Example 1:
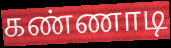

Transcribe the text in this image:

கண்ணாடி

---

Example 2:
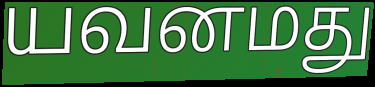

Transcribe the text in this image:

யவனமது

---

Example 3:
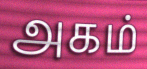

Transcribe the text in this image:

அகம்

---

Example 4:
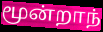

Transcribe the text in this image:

மூன்றாந்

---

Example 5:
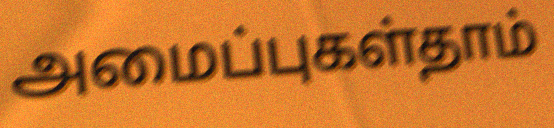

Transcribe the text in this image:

அமைப்புகள்தாம்